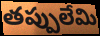
తప్పులేమి